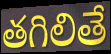
తగిలితే